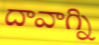
దావాగ్ని